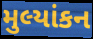
મુલ્યાંકન